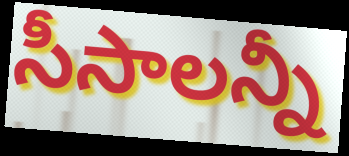
సీసాలన్నీ